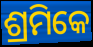
ଶ୍ରମିକେ